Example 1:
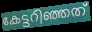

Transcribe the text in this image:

കേട്ടറിഞ്ഞത്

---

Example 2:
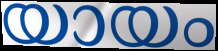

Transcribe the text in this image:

യായം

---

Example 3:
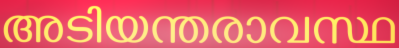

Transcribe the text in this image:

അടിയന്തരാവസ്ഥ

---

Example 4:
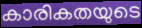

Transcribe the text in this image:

കാരികതയുടെ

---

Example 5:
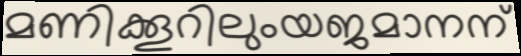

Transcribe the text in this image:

മണിക്കൂറിലുംയജമാനന്